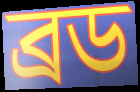
ব্ৰড